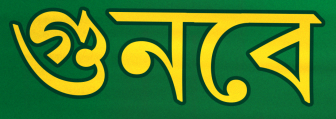
গুনবে